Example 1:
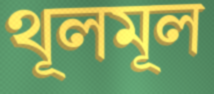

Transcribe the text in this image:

থূলমূল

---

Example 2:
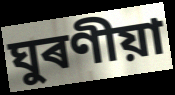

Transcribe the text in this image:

ঘুৰণীয়া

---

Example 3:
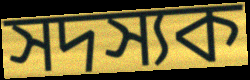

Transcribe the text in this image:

সদস্যক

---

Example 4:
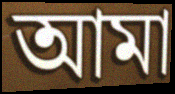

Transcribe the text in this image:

আমা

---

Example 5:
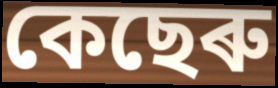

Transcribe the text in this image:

কেছেৰু